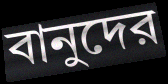
বানুদের